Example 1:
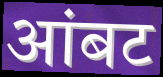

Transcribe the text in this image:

आंबट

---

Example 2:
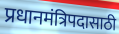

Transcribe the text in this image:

प्रधानमंत्रिपदासाठी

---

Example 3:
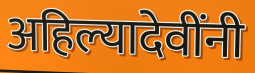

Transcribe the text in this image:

अहिल्यादेवींनी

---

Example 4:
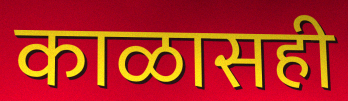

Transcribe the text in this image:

काळासही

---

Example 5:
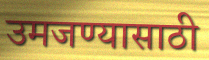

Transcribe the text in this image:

उमजण्यासाठी